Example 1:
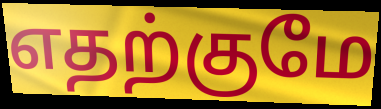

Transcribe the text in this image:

எதற்குமே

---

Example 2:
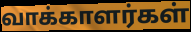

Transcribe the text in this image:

வாக்காளர்கள்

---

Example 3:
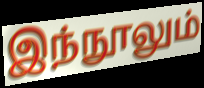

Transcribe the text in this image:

இந்நூலும்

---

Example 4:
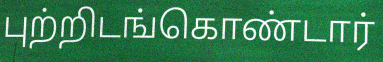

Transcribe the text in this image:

புற்றிடங்கொண்டார்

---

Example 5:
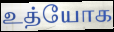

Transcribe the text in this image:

உத்யோக